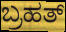
ಬ್ರಹತ್